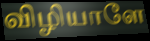
விழியாளே